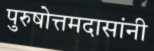
पुरुषोत्तमदासांनी